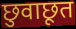
छुवाछूत